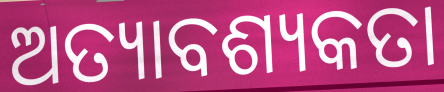
ଅତ୍ୟାବଶ୍ୟକତା